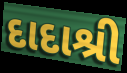
દાદાશ્રી